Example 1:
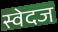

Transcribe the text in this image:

स्वेदज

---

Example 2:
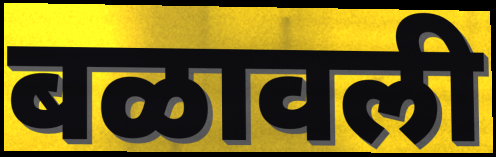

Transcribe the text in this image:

बळावली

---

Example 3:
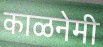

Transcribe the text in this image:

काळनेमी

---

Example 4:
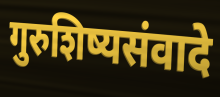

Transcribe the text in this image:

गुरुशिष्यसंवादे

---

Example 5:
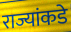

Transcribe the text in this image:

राज्यांकडे